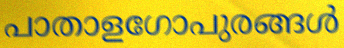
പാതാളഗോപുരങ്ങൾ